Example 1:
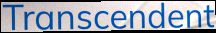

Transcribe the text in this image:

Transcendent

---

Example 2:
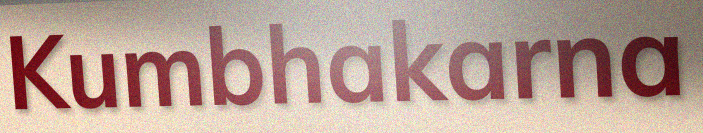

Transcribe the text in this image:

Kumbhakarna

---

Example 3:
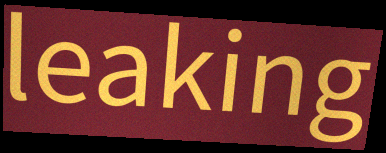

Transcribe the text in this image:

leaking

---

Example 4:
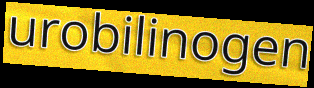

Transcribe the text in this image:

urobilinogen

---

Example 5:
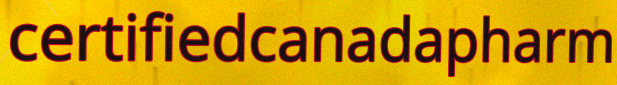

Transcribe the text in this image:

certifiedcanadapharm